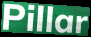
Pillar